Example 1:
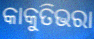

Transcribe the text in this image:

କାକୁତିଭରା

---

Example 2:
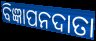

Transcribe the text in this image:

ବିଜ୍ଞାପନଦାତା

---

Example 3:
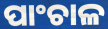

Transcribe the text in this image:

ପାଂଚାଳ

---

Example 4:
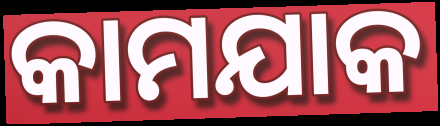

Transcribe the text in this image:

କାମଯାକ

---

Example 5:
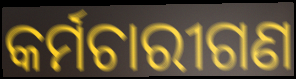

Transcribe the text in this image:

କର୍ମଚାରୀଗଣ